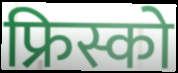
फ्रिस्को